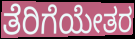
ತೆರಿಗೆಯೇತರ